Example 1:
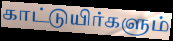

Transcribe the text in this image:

காட்டுயிர்களும்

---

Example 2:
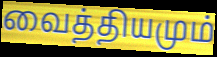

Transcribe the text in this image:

வைத்தியமும்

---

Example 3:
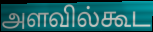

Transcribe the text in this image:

அளவில்கூட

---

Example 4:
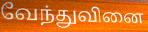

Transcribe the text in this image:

வேந்துவினை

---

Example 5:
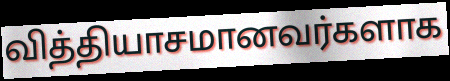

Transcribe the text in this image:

வித்தியாசமானவர்களாக